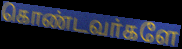
கொண்டவர்களே